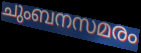
ചുംബനസമരം